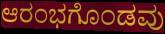
ಆರಂಭಗೊಂಡವು